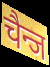
चैन्ज